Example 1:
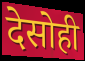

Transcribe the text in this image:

देसोही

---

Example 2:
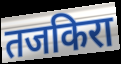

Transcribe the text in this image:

तजकिरा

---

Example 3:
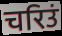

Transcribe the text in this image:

चरिउं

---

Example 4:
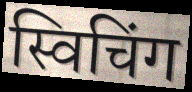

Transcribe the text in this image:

स्विचिंग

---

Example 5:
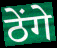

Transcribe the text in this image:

ठेंगे